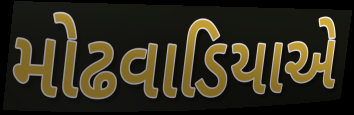
મોઢવાડિયાએ